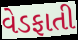
વેડફાતી